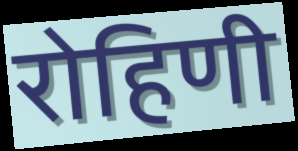
रोहिणी